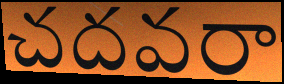
చదవరా